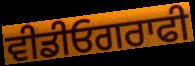
ਵੀਡੀਓਗਰਾਫੀ